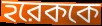
হরেককে